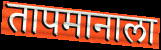
तापमानाला